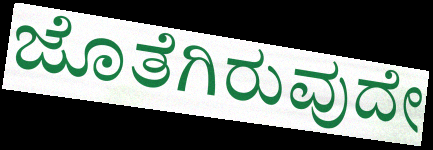
ಜೊತೆಗಿರುವುದೇ